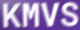
KMVS